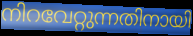
നിറവേറ്റുന്നതിനായി